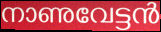
നാണുവേട്ടൻ